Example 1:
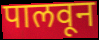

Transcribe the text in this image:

पालवून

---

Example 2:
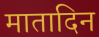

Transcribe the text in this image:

मातादिन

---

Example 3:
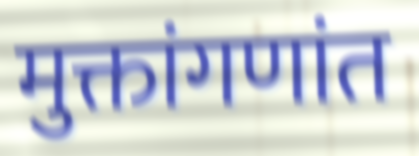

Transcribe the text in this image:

मुक्तांगणांत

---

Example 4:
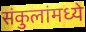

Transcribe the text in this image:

संकुलांमध्ये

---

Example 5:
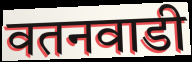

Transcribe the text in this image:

वतनवाडी